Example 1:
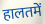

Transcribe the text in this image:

हालतमें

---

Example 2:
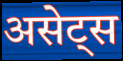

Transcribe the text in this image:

असेट्स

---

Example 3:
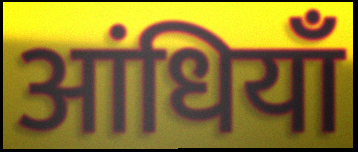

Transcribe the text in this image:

आंधियाँ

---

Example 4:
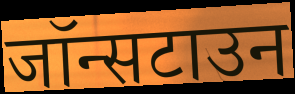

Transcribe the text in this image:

जॉन्सटाउन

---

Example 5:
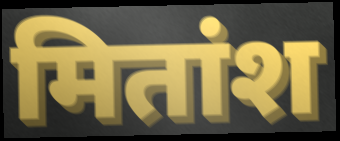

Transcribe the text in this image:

मितांश